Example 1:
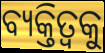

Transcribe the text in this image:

ବ୍ୟକ୍ତିତ୍ଵକୁ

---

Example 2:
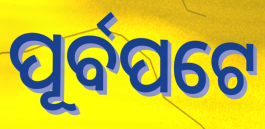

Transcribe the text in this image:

ପୂର୍ବପଟେ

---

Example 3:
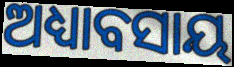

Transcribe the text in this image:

ଅଧ୍ୟାବସାୟ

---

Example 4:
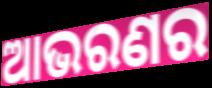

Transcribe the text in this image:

ଆଭରଣର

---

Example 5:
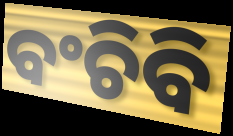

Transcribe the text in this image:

ବଂଚିବି